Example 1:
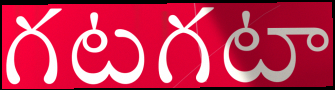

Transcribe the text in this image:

గటగటా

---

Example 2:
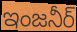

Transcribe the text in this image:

ఇంజనీర్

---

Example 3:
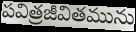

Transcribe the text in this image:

పవిత్రజీవితమును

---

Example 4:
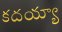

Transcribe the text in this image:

కదయ్యా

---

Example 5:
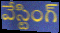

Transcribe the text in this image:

వేస్టింగ్